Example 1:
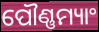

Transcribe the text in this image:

ପୌଣ୍ଣମ୍ୟାଂ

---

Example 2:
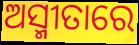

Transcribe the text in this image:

ଅସ୍ମୀତାରେ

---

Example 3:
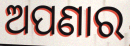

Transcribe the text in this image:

ଅପଣାର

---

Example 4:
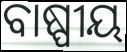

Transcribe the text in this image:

ବାଷ୍ପୀୟ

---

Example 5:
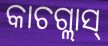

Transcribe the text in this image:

କାଚଗ୍ଲାସ୍